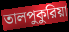
তালপুকুরিয়া